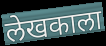
लेखकाला